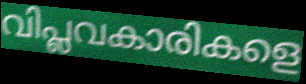
വിപ്ലവകാരികളെ